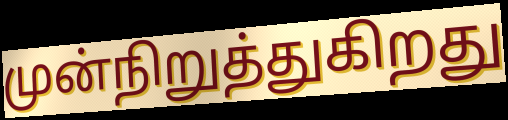
முன்நிறுத்துகிறது